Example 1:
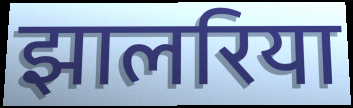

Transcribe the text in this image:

झालरिया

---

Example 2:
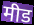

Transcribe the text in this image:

मीड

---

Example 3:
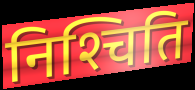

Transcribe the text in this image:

निश्चिति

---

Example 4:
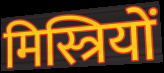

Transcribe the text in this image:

मिस्त्रियों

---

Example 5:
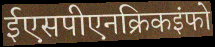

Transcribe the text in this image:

ईएसपीएनक्रिकइंफो